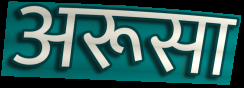
अरूसा